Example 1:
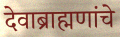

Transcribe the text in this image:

देवाब्राह्मणांचे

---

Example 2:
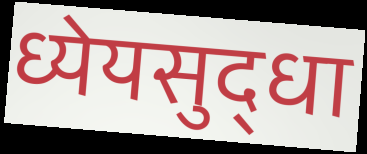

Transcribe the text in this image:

ध्येयसुद्धा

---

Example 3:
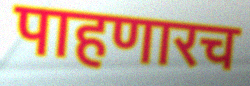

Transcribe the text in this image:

पाहणारच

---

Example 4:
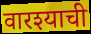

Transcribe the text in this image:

वारश्याची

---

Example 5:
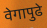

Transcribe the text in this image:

वेगापुढे